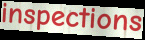
inspections